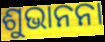
ଶୁଭାନନା